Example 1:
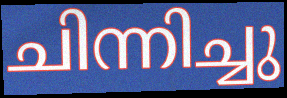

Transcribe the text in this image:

ചിന്നിച്ചു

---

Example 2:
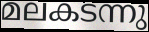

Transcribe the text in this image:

മലകടന്നു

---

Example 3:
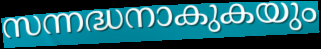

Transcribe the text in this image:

സന്നദ്ധനാകുകയും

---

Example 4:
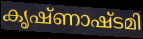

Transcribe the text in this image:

കൃഷ്ണാഷ്ടമി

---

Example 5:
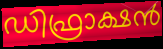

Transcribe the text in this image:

ഡിഫ്രാക്ഷൻ